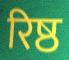
रिष्ठ